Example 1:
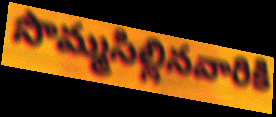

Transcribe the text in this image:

సొమ్మసిల్లినవారికి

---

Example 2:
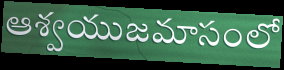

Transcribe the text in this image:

ఆశ్వయుజమాసంలో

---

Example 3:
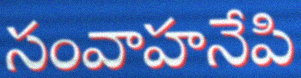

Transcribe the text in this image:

సంవాహనేపి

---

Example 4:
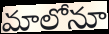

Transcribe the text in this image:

మాలోనూ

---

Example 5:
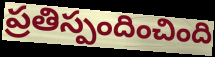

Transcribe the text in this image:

ప్రతిస్పందించింది